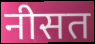
नीसत